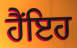
ਹੈਂਇਹ